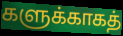
களுக்காகத்